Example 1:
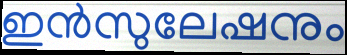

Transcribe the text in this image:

ഇൻസുലേഷനും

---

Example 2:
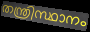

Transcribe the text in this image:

തന്ത്രിസ്ഥാനം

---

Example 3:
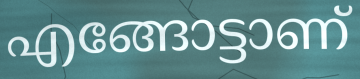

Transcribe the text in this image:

എങ്ങോട്ടാണ്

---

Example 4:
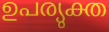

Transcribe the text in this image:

ഉപര്യുക്ത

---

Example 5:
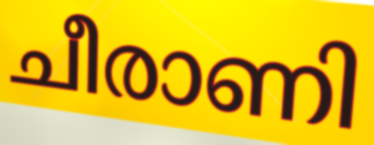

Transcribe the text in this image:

ചീരാണി